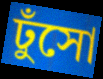
ঢুঁসো